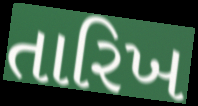
તારિખ